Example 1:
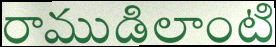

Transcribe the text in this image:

రాముడిలాంటి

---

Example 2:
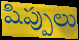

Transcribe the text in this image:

షిప్పులు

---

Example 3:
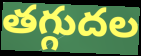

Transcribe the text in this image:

తగ్గుదల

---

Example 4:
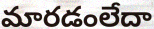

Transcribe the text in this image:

మారడంలేదా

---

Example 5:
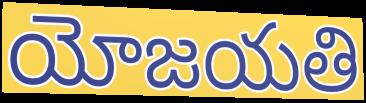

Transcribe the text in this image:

యోజయతి